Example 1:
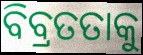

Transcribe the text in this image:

ବିବ୍ରତତାକୁ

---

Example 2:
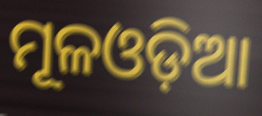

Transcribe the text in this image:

ମୂଳଓଡ଼ିଆ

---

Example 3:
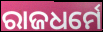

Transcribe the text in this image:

ରାଜଧର୍ମେ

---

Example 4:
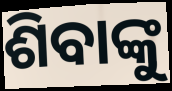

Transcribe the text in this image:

ଶିବାଙ୍କୁ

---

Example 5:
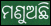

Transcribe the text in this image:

ମଣୁଅଛି